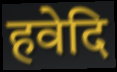
हवेदि